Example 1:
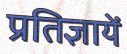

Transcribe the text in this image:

प्रतिज्ञायें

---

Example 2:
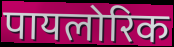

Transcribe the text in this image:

पायलोरिक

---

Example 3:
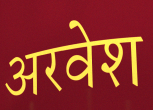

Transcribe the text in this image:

अरवेश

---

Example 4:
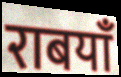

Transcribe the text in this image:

राबयाँ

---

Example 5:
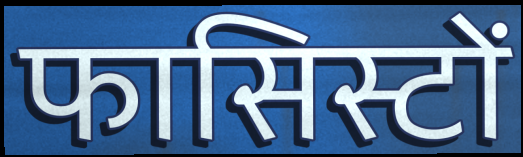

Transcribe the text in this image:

फासिस्टों